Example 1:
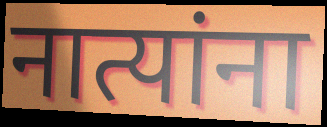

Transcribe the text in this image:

नात्यांना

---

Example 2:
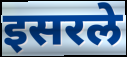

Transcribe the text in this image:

इसरले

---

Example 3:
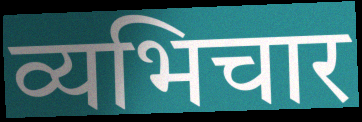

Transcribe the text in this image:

व्यभिचार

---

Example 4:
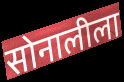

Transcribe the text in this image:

सोनालीला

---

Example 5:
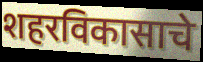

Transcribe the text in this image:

शहरविकासाचे